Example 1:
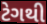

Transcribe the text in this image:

ટેગથી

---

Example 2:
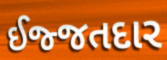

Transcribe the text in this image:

ઈજ્જતદાર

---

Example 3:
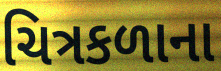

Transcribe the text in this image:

ચિત્રકળાના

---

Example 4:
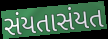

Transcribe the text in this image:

સંયતાસંયત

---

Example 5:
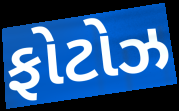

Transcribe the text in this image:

ફોટોઝ